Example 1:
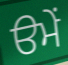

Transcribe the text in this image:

ੳਮੇਂ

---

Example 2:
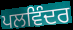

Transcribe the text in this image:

ਪਲਵਿੰਦਰ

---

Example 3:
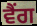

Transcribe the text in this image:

ਵੈਂਗ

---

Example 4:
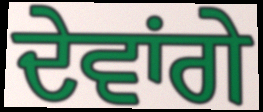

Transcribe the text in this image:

ਦੇਵਾਂਗੇ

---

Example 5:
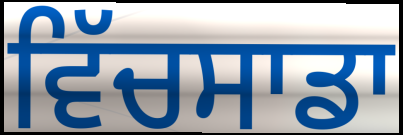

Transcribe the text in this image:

ਵਿੱਚਸਾਡਾ